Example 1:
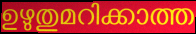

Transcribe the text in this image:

ഉഴുതുമറിക്കാത്ത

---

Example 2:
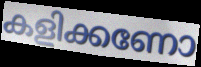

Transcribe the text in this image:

കളിക്കണോ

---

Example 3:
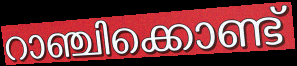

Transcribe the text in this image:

റാഞ്ചിക്കൊണ്ട്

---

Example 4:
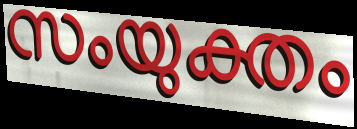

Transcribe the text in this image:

സംയുക്തം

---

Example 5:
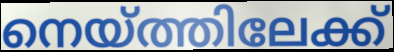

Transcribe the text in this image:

നെയ്ത്തിലേക്ക്